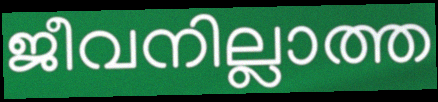
ജീവനില്ലാത്ത